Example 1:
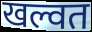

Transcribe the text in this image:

खल्वत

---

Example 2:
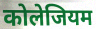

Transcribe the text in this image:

कोलेजियम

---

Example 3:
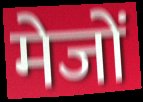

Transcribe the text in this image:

मेजों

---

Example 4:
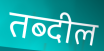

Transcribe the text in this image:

तब्‍दील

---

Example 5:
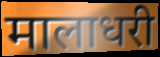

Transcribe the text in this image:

मालाधरी